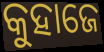
କୁହାଜେ